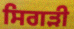
ਸਿਗੜੀ